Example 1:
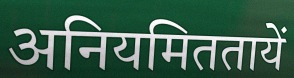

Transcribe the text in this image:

अनियमिततायें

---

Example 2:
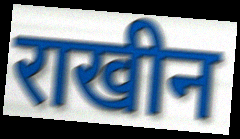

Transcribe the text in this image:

राखीन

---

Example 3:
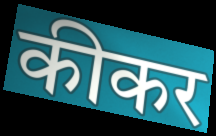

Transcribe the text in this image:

कीकर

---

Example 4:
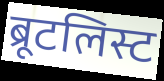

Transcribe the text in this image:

ब्रूटलिस्ट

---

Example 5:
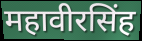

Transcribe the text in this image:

महावीरसिंह